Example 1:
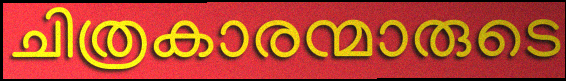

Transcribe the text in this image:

ചിത്രകാരന്മാരുടെ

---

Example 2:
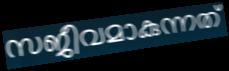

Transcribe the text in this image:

സജീവമാകുന്നത്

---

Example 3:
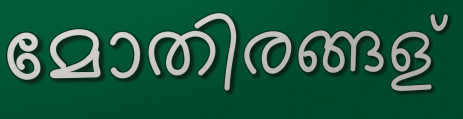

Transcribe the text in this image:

മോതിരങ്ങള്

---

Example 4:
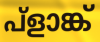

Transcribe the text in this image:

പ്ളാങ്ക്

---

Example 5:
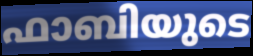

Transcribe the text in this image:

ഫാബിയുടെ